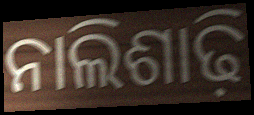
ନାଲିଶାଢ଼ି